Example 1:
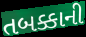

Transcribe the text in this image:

તબક્કાની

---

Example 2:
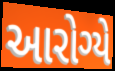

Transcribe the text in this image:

આરોગ્યે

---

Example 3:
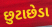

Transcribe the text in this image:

છુટાછેડા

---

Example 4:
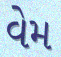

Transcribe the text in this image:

વેમ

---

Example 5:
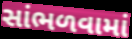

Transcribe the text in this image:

સાંભળવામાં